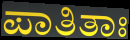
ಪಾತಿತಾಃ